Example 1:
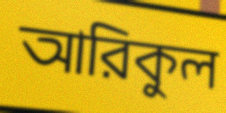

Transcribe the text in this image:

আরিকুল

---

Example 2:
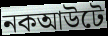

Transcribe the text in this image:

নকআউটে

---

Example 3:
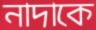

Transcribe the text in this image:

নাদাকে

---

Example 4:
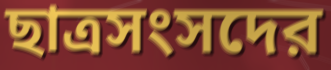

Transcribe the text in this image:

ছাত্রসংসদের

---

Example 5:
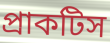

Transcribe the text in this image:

প্রাকটিস